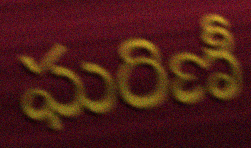
ఘరిణీ